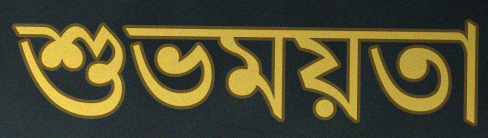
শুভময়তা